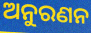
ଅନୁରଣନ